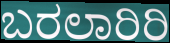
ಬರಲಾರಿರಿ